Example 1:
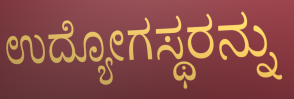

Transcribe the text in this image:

ಉದ್ಯೋಗಸ್ಥರನ್ನು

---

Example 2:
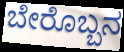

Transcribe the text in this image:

ಬೇರೊಬ್ಬನ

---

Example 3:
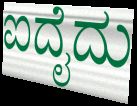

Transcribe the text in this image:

ಐದೈದು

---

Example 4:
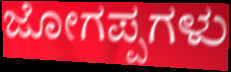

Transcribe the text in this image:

ಜೋಗಪ್ಪಗಳು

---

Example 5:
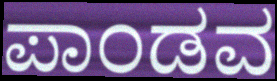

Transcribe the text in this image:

ಪಾಂಡವ